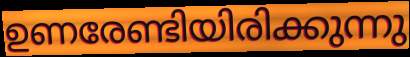
ഉണരേണ്ടിയിരിക്കുന്നു